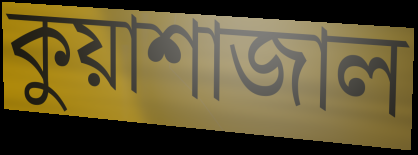
কুয়াশাজাল